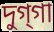
দুগ্‌গা